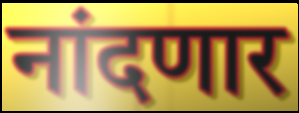
नांदणार